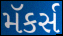
મૅકર્સ